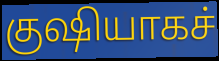
குஷியாகச்